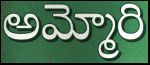
అమ్మోరి